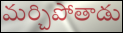
మర్చిపోతాడు